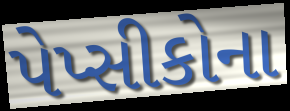
પેપ્સીકોના